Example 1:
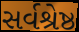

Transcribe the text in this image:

સર્વશ્રેષ્ઠ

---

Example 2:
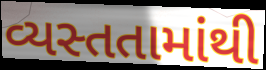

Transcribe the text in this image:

વ્યસ્તતામાંથી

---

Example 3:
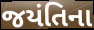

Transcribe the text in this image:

જયંતિના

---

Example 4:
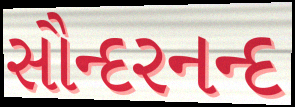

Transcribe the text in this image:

સૌન્દરનન્દ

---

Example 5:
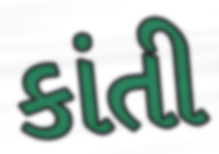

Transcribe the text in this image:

કાંતી